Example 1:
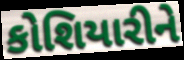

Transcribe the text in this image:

કોશિયારીને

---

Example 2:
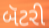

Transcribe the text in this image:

બૅટરી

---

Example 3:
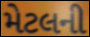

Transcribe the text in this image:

મેટલની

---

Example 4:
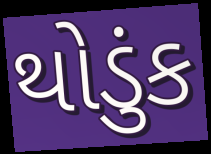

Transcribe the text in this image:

થોડુંક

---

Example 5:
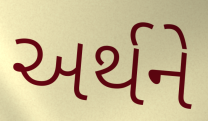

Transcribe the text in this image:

અર્થને